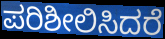
ಪರಿಶೀಲಿಸಿದರೆ